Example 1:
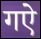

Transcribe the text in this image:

गऐ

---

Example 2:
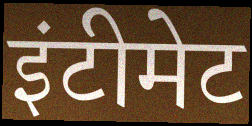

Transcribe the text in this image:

इंटीमेट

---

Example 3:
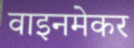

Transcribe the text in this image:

वाइनमेकर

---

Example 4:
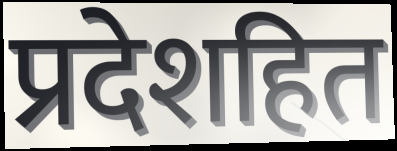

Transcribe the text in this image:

प्रदेशहित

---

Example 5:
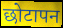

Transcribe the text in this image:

छोटापन